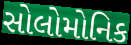
સોલોમોનિક